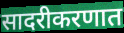
सादरीकरणात